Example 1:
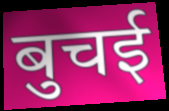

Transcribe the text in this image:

बुचई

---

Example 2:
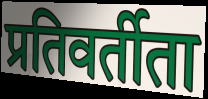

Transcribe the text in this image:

प्रतिवर्तीता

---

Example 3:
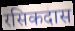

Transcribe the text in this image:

रसिकदास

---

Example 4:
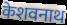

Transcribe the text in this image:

केशवनाथ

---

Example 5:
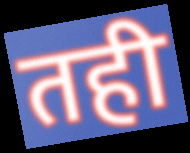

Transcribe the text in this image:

तही